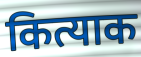
कित्याक